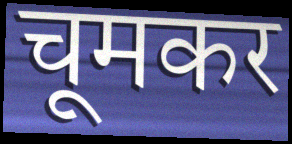
चूमकर